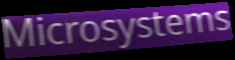
Microsystems